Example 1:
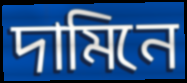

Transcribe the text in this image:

দামিনে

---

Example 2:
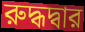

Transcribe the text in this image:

রুদ্ধদ্বার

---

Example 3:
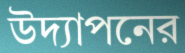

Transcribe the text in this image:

উদ্যাপনের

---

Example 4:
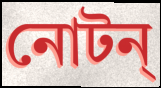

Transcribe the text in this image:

নোটন্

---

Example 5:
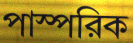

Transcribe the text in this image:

পাস্পরিক